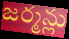
జర్మన్లు